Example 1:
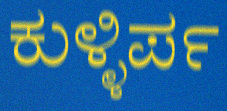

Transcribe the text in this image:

ಕುಳ್ಳಿರ್ಪ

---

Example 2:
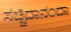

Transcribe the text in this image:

ಸಚ್ಚಿದಾನಂದಾ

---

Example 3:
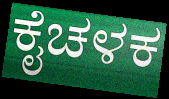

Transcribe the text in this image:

ಕೈಚಳಕ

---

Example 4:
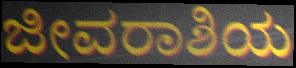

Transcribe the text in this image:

ಜೀವರಾಶಿಯ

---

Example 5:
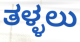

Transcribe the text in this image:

ತಳ್ಳಲು